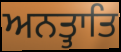
ਅਨਤ੍ਤਾਤਿ